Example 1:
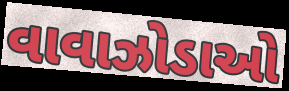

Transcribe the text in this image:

વાવાઝોડાઓ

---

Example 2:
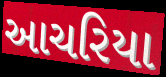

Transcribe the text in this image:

આચરિયા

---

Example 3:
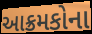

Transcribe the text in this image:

આક્રમકોના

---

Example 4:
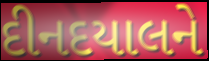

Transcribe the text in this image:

દીનદયાલને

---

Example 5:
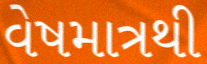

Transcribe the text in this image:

વેષમાત્રથી